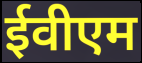
ईवीएम